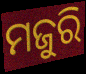
ମଜୁରି